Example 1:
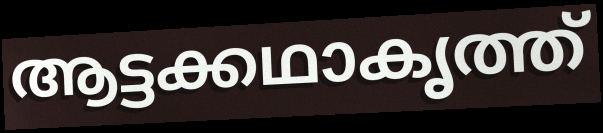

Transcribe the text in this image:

ആട്ടക്കഥാകൃത്ത്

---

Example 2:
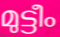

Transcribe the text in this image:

മുട്ടീം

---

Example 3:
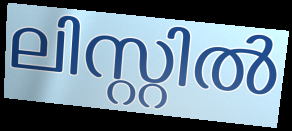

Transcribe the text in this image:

ലിസ്റ്റിൽ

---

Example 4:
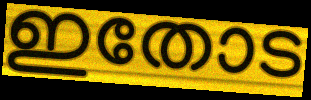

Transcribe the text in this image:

ഇതോട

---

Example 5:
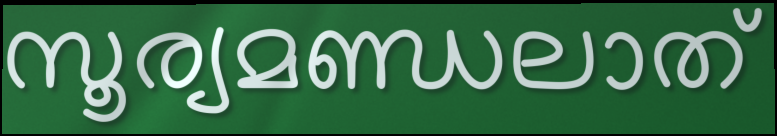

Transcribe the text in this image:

സൂര്യമണ്ഡലാത്